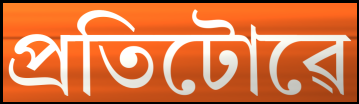
প্ৰতিটোৱে